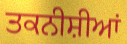
ਤਕਨੀਸ਼ੀਆਂ